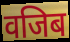
वजिब